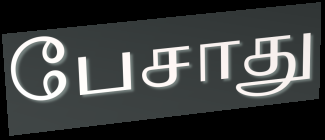
பேசாது